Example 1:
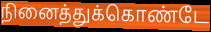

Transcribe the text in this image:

நினைத்துக்கொண்டே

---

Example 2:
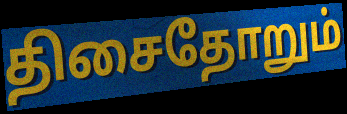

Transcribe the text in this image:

திசைதோறும்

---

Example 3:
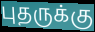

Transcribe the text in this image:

புதருக்கு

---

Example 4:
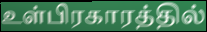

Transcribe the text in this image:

உள்பிரகாரத்தில்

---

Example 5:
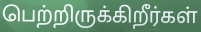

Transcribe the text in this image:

பெற்றிருக்கிறீர்கள்